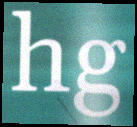
hg